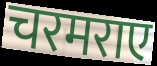
चरमराए